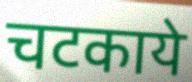
चटकाये